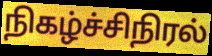
நிகழ்ச்சிநிரல்